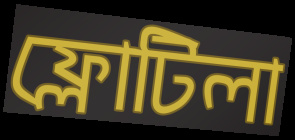
ফ্লোটিলা